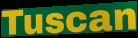
Tuscan